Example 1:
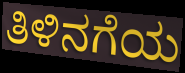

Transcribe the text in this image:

ತಿಳಿನಗೆಯ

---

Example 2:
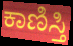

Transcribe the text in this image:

ಕಾಣಿಸ್ತಿ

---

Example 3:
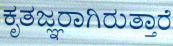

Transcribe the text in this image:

ಕೃತಜ್ಞರಾಗಿರುತ್ತಾರೆ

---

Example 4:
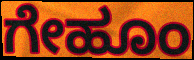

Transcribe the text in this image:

ಗೇಹೂಂ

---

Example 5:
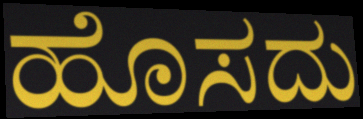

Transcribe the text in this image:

ಹೊಸದು